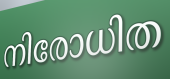
നിരോധിത